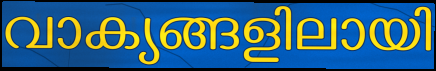
വാക്യങ്ങളിലായി